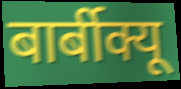
बार्बीक्यू